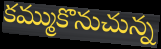
కమ్ముకొనుచున్న